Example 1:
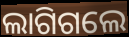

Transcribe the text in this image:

ଲାଗିଗଲେ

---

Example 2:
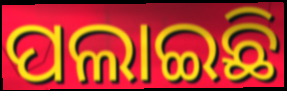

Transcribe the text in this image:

ପଲାଇଛି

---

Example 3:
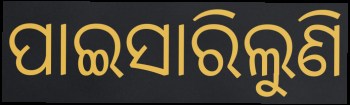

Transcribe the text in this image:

ପାଇସାରିଲୁଣି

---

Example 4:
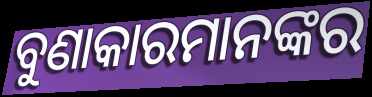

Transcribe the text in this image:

ବୁଣାକାରମାନଙ୍କର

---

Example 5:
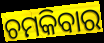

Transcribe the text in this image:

ଚମକିବାର